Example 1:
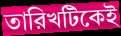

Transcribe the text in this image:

তারিখটিকেই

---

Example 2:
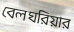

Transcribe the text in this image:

বেলঘরিয়ার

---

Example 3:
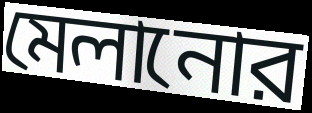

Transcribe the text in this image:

মেলানোর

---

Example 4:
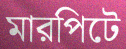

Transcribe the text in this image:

মারপিটে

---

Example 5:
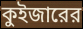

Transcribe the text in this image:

কুইজারের